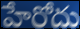
హేరోదు